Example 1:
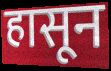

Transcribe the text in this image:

हासून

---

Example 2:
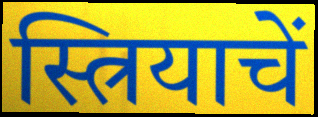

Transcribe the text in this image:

स्त्रियाचें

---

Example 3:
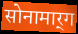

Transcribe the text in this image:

सोनामार्ग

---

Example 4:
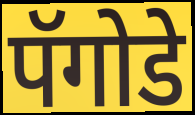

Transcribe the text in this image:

पॅगोडे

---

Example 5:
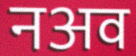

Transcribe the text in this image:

नअव